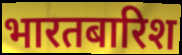
भारतबारिश